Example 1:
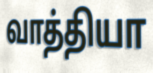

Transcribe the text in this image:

வாத்தியா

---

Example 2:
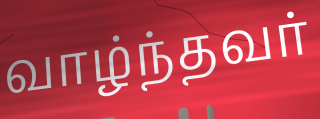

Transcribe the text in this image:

வாழ்ந்தவர்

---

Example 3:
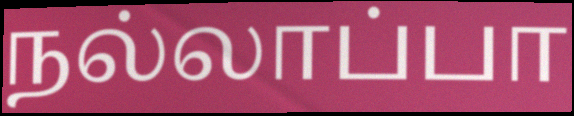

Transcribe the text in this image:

நல்லாப்பா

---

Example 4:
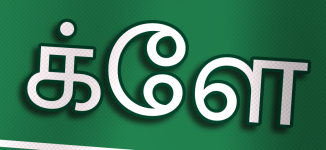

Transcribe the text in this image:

க்ளே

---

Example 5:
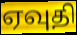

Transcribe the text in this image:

ஏவுதி